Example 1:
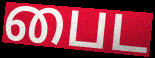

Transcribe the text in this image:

பைட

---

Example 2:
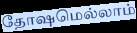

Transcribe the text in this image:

தோஷமெல்லாம்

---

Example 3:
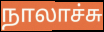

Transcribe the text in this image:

நாலாச்சு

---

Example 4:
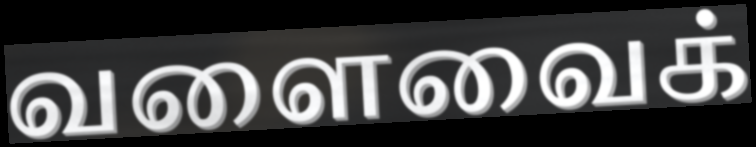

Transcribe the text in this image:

வளைவைக்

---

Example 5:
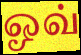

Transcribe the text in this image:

ஓவ்